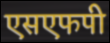
एसएफपी